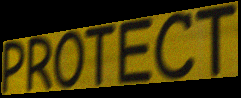
PROTECT